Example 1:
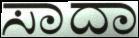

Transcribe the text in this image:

ಸಾದಾ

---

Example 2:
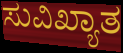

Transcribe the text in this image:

ಸುವಿಖ್ಯಾತ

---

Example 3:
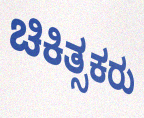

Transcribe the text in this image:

ಚಿಕಿತ್ಸಕರು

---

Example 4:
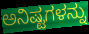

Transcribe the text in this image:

ಅನಿಷ್ಟಗಳನ್ನು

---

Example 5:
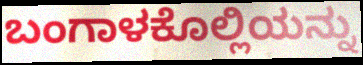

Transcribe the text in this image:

ಬಂಗಾಳಕೊಲ್ಲಿಯನ್ನು